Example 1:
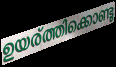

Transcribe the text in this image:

ഉയര്ത്തിക്കൊണ്ടു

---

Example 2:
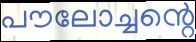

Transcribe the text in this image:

പൗലോച്ചന്റെ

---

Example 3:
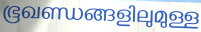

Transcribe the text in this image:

ഭൂഖണ്ഡങ്ങളിലുമുള്ള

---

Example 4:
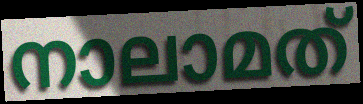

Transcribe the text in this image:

നാലാമത്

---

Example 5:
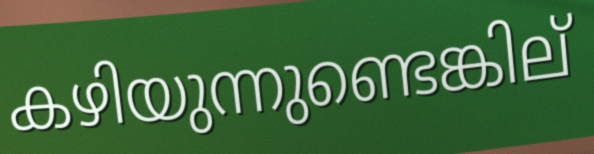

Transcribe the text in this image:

കഴിയുന്നുണ്ടെങ്കില്